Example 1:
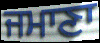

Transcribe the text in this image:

ਜਮਾਣਾ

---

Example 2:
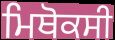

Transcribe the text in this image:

ਮਿਥੋਕਸੀ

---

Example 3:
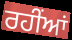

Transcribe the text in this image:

ਰਹੀਂਆਂ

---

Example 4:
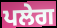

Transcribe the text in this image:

ਪਲੇਗ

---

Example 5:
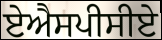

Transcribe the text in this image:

ਏਐਸਪੀਸੀਏ